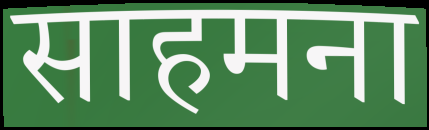
साहमना